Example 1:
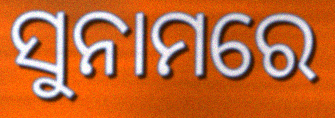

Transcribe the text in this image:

ସୁନାମରେ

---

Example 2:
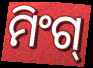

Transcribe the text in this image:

ମିଂଗ୍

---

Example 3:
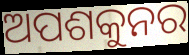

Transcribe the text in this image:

ଅପଶକୁନର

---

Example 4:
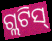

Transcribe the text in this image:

ଗ୍ଲଟିସ୍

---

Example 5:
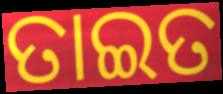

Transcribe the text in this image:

ତାଇତ